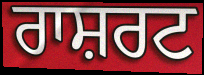
ਰਾਸ਼ਰਟ